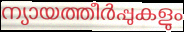
ന്യായത്തീർപ്പുകളും